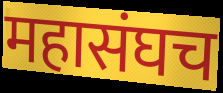
महासंघच